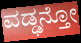
ವಡ್ಢನ್ತೋ